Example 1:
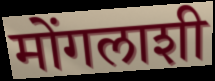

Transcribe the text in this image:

मोंगलाशी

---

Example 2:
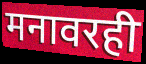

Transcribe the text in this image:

मनावरही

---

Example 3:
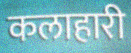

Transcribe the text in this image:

कलाहारी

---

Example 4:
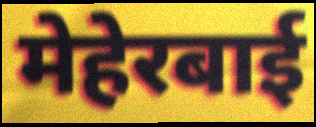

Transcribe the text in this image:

मेहेरबाई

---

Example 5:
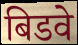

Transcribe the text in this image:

बिडवे